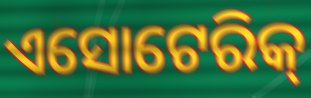
ଏସୋଟେରିକ୍